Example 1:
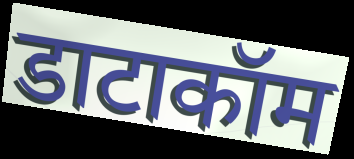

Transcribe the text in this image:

डाटाकॉम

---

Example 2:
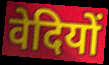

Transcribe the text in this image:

वेदियों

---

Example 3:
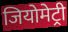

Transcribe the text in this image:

जियोमेट्री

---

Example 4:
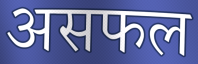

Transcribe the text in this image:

असफल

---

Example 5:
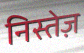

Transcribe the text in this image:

निस्तेज़